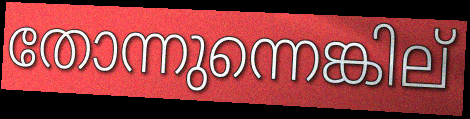
തോന്നുന്നെങ്കില്